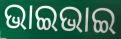
ଭାଇଭାଇ